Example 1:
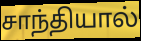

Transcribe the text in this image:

சாந்தியால்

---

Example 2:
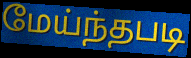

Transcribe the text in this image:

மேய்ந்தபடி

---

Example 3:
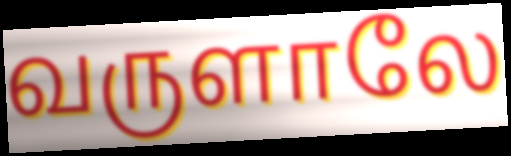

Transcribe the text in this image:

வருளாலே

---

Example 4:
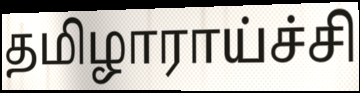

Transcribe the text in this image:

தமிழாராய்ச்சி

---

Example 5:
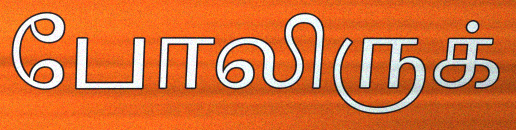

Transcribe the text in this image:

போலிருக்